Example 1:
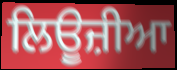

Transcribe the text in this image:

ਲਿਊਜ਼ੀਆ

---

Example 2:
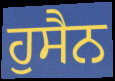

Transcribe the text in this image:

ਹੁਸੈਨ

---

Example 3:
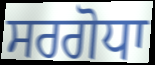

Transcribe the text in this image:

ਸਰਗੋਧਾ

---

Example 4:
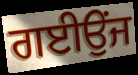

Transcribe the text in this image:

ਗਈਉਂਜ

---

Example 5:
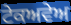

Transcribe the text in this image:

ਟੇਕਅਵੇਅ